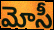
మోసీ